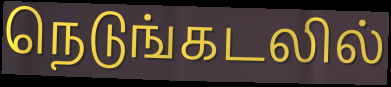
நெடுங்கடலில்